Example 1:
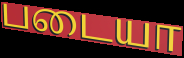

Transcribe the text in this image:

படையா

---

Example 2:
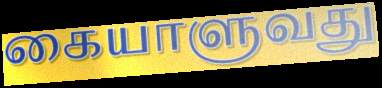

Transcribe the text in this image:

கையாளுவது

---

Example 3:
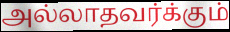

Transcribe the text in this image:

அல்லாதவர்க்கும்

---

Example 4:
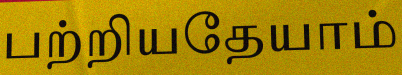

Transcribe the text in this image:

பற்றியதேயாம்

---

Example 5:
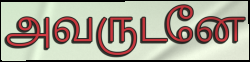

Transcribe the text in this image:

அவருடனே